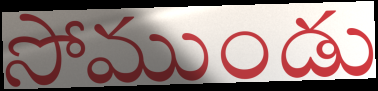
సోముండు